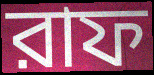
রাফ